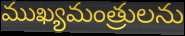
ముఖ్యమంత్రులను